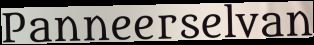
Panneerselvan